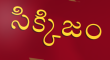
సిక్కిజం